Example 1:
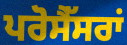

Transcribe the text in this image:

ਪਰੋਸੈੱਸਰਾਂ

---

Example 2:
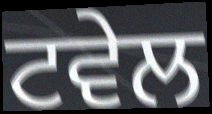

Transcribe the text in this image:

ਟਵੇਲ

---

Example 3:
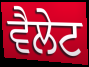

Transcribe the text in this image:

ਵੈਲੇਟ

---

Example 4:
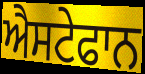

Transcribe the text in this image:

ਐਸਟੇਫਾਨ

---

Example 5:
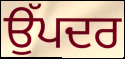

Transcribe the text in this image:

ਉੱਪਦਰ